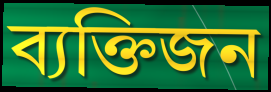
ব্যক্তিজন